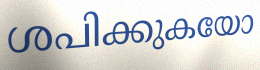
ശപിക്കുകയോ